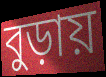
বুড়ায়